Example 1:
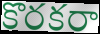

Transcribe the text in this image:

కొరకరా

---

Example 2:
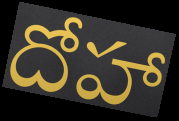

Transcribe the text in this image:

దోహా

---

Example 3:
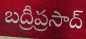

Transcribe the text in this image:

బద్రీప్రసాద్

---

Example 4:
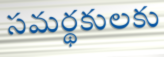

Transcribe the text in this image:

సమర్థకులకు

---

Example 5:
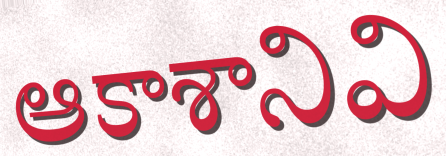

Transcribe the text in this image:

ఆకాశానివి